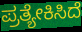
ಪ್ರತ್ಯೇಕಿಸಿದೆ